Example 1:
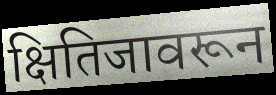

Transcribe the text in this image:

क्षितिजावरून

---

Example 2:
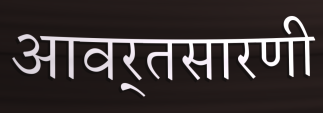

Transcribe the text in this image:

आवर्तसारणी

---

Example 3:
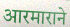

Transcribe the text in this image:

आरमाराने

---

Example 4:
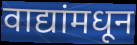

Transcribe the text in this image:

वाद्यांमधून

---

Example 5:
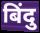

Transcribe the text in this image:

बिंदु